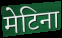
मेटिना